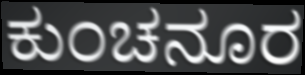
ಕುಂಚನೂರ